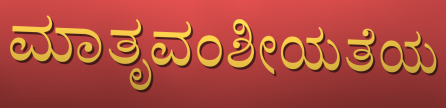
ಮಾತೃವಂಶೀಯತೆಯ